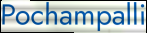
Pochampalli